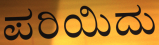
ಪರಿಯಿದು